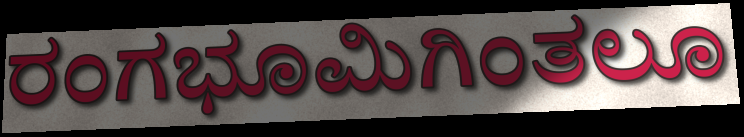
ರಂಗಭೂಮಿಗಿಂತಲೂ